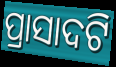
ପ୍ରାସାଦଟି